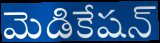
మెడికేషన్